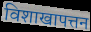
विशाखापत्तन